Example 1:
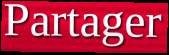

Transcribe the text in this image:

Partager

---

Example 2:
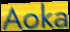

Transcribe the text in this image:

Aoka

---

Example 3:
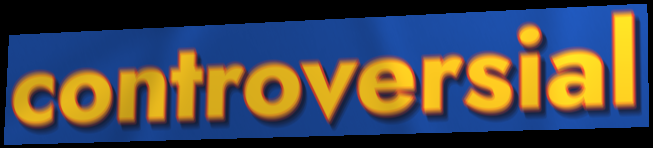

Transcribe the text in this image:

controversial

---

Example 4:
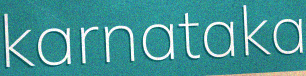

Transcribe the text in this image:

karnataka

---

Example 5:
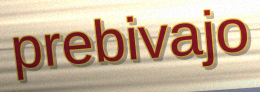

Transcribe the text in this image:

prebivajo